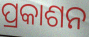
ପ୍ରକାଶନ